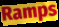
Ramps